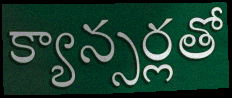
క్యాన్సర్లతో